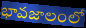
భావజాలంలో